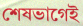
শেষভাগেই